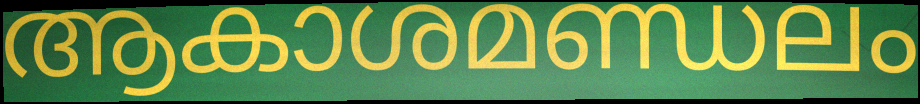
ആകാശമണ്ഡലം